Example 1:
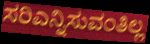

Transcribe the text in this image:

ಸರಿಎನ್ನಿಸುವಂತಿಲ್ಲ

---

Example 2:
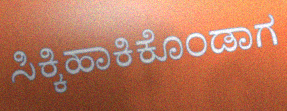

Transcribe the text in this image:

ಸಿಕ್ಕಿಹಾಕಿಕೊಂಡಾಗ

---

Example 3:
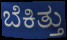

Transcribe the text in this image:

ಬೆಕಿತ್ತು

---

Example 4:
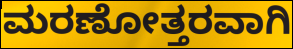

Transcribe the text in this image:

ಮರಣೋತ್ತರವಾಗಿ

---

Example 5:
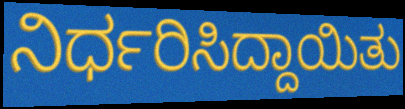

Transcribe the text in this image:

ನಿರ್ಧರಿಸಿದ್ದಾಯಿತು